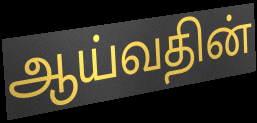
ஆய்வதின்